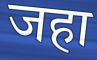
जहा